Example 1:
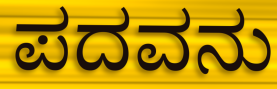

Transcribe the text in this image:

ಪದವನು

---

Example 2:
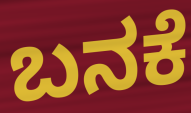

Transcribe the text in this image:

ಬನಕೆ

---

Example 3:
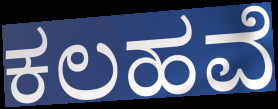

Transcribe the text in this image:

ಕಲಹವೆ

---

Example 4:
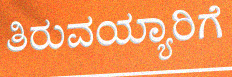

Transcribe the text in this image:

ತಿರುವಯ್ಯಾರಿಗೆ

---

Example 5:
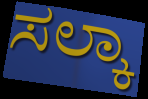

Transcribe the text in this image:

ಸಲ್ಕಾ